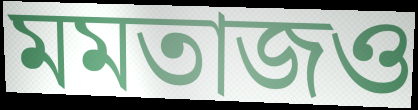
মমতাজও